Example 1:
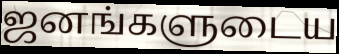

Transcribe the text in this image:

ஜனங்களுடைய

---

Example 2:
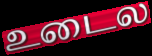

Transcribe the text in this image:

உடைல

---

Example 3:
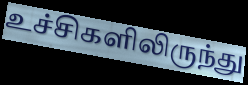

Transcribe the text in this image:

உச்சிகளிலிருந்து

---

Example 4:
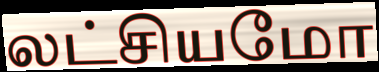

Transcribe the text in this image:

லட்சியமோ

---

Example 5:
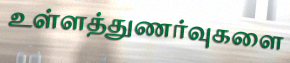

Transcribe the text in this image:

உள்ளத்துணர்வுகளை